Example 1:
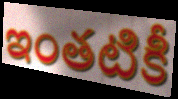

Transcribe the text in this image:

ఇంతటికీ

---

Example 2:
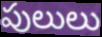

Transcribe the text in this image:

పులులు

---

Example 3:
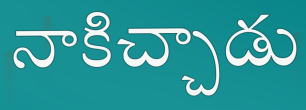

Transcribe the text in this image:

నాకిచ్చాడు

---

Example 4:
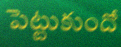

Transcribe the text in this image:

పెట్టుకుందో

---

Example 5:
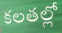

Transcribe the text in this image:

కలతల్లో